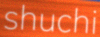
shuchi